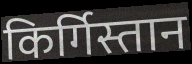
किर्गिस्तान